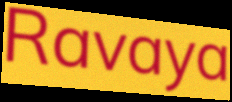
Ravaya